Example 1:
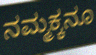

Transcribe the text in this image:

ನಮ್ಮಕ್ಕನೂ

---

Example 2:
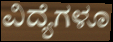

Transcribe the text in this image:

ವಿದ್ಯೆಗಳೂ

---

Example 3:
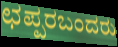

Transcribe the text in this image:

ಛಪ್ಪರಬಂದರು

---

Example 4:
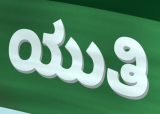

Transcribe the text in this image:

ಯುತಿ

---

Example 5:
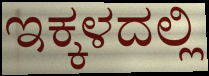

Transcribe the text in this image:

ಇಕ್ಕಳದಲ್ಲಿ